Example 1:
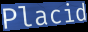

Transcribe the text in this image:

Placid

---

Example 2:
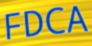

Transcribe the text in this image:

FDCA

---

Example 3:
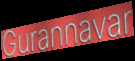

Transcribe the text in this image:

Gurannavar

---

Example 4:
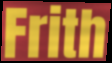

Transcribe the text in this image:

Frith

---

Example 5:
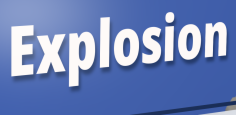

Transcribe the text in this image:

Explosion